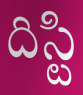
దిస్టి